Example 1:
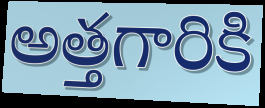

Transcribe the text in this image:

అత్తగారికి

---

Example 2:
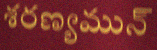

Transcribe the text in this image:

శరణ్యమున్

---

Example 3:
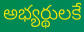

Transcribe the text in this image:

అభ్యర్థులకే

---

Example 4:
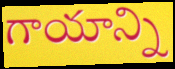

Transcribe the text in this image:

గాయాన్ని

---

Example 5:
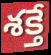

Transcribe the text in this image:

శక్తే